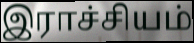
இராச்சியம்